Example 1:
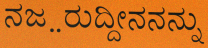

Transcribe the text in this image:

ನಜ಼ರುದ್ದೀನನನ್ನು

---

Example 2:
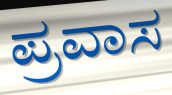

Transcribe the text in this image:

ಪ್ರವಾಸ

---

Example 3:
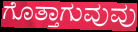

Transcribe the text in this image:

ಗೊತ್ತಾಗುವುವು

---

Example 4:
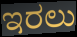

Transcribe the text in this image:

ಇರಲು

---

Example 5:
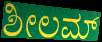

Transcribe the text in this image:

ಶೀಲಮ್